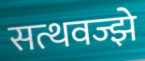
सत्थवज्झे